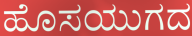
ಹೊಸಯುಗದ